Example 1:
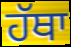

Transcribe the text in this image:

ਹੱਥਾ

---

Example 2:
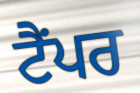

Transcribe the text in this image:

ਟੈਂਪਰ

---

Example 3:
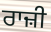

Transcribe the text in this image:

ਰਾਜ਼ੀ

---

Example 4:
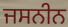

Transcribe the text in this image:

ਜਸਨੀਨ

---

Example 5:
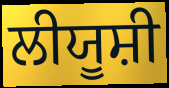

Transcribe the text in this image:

ਲੀਯੂਸ਼ੀ